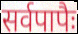
सर्वपापैः